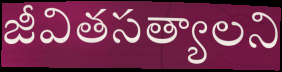
జీవితసత్యాలని